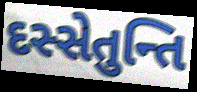
દસ્સેતુન્તિ